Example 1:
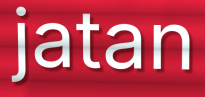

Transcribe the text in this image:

jatan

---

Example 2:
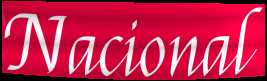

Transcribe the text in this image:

Nacional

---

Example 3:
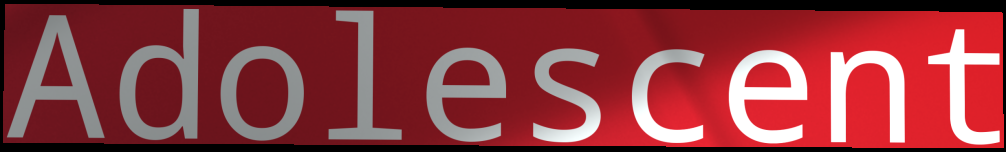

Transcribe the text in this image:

Adolescent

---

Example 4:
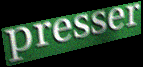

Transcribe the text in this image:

presser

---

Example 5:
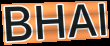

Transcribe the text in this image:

BHAI